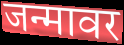
जन्मावर